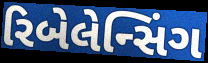
રિબેલેન્સિંગ